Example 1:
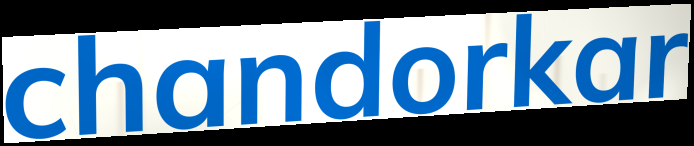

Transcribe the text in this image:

chandorkar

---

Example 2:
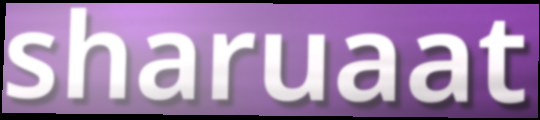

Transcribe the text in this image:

sharuaat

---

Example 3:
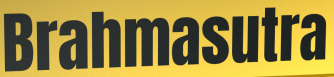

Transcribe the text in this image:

Brahmasutra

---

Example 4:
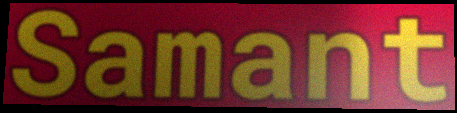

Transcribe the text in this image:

Samant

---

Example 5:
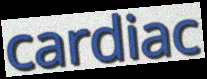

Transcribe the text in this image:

cardiac